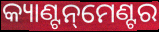
କ୍ୟାଣ୍ଟନ୍‌ମେଣ୍ଟର